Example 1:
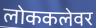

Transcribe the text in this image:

लोककलेवर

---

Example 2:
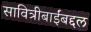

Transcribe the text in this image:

सावित्रीबाईंबद्दल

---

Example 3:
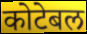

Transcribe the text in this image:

कोटेबल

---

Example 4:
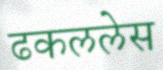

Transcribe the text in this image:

ढकललेस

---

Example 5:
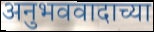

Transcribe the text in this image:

अनुभववादाच्या